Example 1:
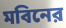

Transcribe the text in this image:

মবিনের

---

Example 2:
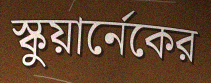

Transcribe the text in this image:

স্কুয়ার্নেকের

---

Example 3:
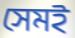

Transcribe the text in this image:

সেমই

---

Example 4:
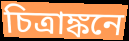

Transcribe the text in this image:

চিত্রাঙ্কনে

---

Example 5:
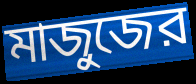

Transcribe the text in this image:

মাজুজের